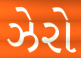
ઝેરો